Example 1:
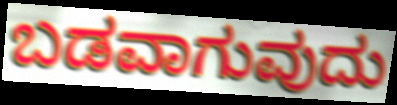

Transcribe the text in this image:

ಬಡವಾಗುವುದು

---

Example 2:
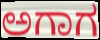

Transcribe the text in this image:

ಅಗಾಗ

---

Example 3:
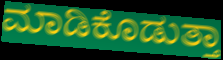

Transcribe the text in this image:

ಮಾಡಿಕೊಡುತ್ತಾ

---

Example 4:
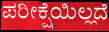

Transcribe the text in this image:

ಪರೀಕ್ಷೆಯಿಲ್ಲದೆ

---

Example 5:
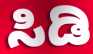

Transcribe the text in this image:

ಸಿಡಿ